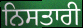
ਨਿਸਤਾਰੀ